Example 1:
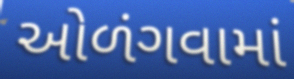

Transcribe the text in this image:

ઓળંગવામાં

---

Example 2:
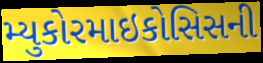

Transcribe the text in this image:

મ્યુકોરમાઇકોસિસની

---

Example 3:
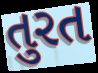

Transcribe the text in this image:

તુરત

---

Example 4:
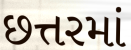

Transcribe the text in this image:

છત્તરમાં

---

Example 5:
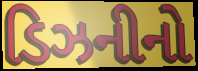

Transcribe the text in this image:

ડિઝનીનો